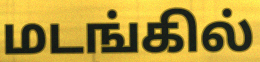
மடங்கில்